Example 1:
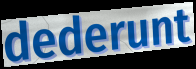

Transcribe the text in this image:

dederunt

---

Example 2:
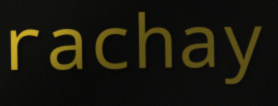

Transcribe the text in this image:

rachay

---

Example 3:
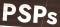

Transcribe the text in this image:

PSPs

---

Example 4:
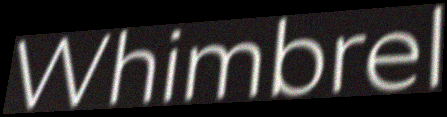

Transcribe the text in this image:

Whimbrel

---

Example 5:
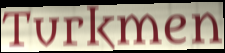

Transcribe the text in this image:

Turkmen